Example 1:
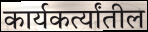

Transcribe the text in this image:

कार्यकर्त्यांतील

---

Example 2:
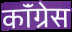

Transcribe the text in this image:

कॉंग्रेस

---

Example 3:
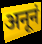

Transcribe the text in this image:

अनूनं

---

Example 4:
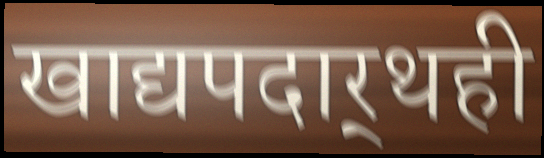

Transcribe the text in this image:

खाद्यपदार्थही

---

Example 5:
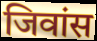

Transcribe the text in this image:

जिवांस